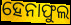
ହେନାଫୁଲ